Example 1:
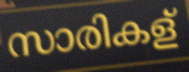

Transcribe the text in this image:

സാരികള്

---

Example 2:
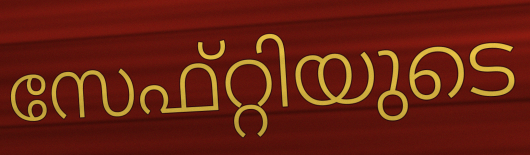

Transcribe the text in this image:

സേഫ്റ്റിയുടെ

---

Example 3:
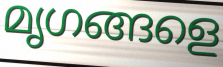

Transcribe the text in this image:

മൃഗങ്ങളെ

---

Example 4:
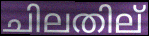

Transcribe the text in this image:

ചിലതില്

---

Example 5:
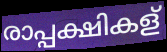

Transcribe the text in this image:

രാപ്പക്ഷികള്